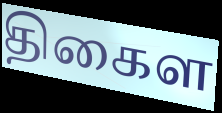
திகைள